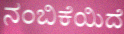
ನಂಬಿಕೆಯಿದೆ